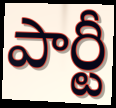
పార్టీ